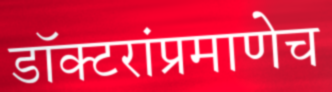
डॉक्टरांप्रमाणेच